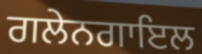
ਗਲੇਨਗਾਇਲ